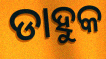
ଡାହୁକ